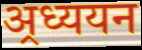
अ्रध्ययन